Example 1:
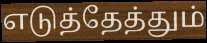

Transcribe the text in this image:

எடுத்தேத்தும்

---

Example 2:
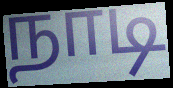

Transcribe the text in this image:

நாடி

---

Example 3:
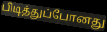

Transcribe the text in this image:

பிடித்துப்போனது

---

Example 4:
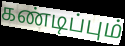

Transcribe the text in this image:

கண்டிப்பும்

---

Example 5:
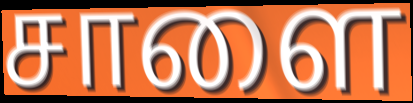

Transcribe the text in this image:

சாளை